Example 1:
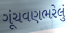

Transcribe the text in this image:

ગૂંચવણભરેલું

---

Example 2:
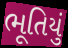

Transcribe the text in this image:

ભૂતિયું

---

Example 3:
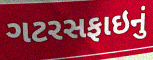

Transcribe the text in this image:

ગટરસફાઇનું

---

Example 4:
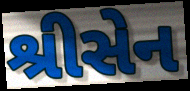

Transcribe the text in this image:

શ્રીસેન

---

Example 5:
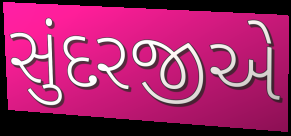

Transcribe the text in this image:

સુંદરજીએ